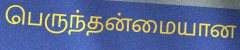
பெருந்தன்மையான